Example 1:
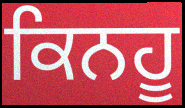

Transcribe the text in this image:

ਕਿਨਹੂ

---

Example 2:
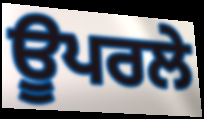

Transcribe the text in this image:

ਊਪਰਲੇ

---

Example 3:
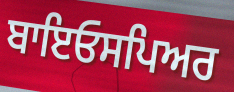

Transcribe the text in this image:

ਬਾਇਓਸਪਿਅਰ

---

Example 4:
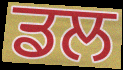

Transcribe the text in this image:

ਡਲ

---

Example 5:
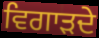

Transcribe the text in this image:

ਵਿਗਾੜਦੇ